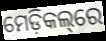
ମେଡ଼ିକଲ୍‌ରେ